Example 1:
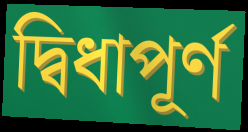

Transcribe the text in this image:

দ্বিধাপূর্ণ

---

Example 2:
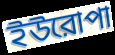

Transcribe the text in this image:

ইউরোপা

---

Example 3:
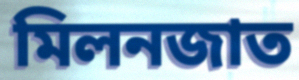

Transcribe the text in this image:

মিলনজাত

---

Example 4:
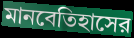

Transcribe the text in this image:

মানবেতিহাসের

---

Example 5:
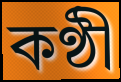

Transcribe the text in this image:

কণ্ঠী